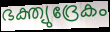
ഭക്ത്യുദ്രേകം